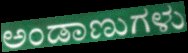
ಅಂಡಾಣುಗಳು